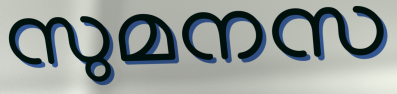
സുമനസ